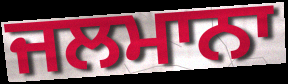
ਜਲਮਾਨਾ